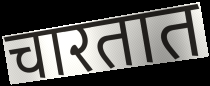
चारतात